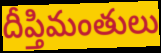
దీప్తిమంతులు